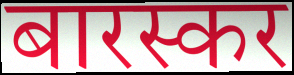
बारस्कर